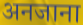
अनजाना